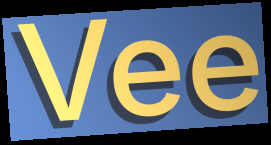
Vee